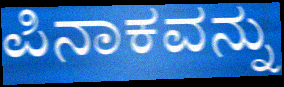
ಪಿನಾಕವನ್ನು